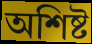
অশিষ্ট